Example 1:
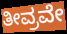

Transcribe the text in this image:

ತೀವ್ರವೇ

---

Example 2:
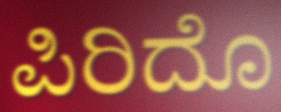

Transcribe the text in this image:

ಪಿರಿದೊ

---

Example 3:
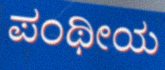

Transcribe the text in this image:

ಪಂಥೀಯ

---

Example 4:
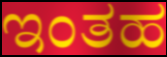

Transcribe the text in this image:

ಇಂತಹ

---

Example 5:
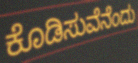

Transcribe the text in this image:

ಕೊಡಿಸುವೆನೆಂದು